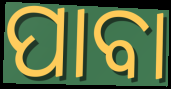
ପାବା